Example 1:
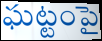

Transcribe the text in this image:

ఘట్టంపై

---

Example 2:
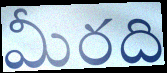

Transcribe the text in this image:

మీరది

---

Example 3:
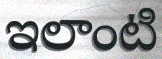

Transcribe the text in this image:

ఇలాంటి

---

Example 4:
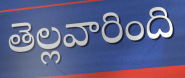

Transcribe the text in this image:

తెల్లవారింది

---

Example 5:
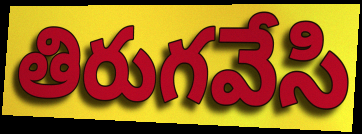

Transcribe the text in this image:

తిరుగవేసి